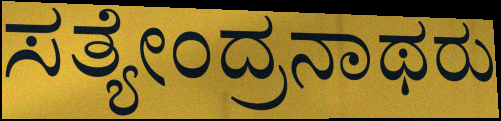
ಸತ್ಯೇಂದ್ರನಾಥರು